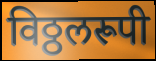
विठ्ठलरूपी